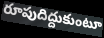
రూపుదిద్దుకుంటూ